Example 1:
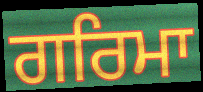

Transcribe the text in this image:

ਗਰਿਮਾ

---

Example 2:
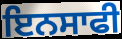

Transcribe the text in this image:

ਇਨਸਾਫੀ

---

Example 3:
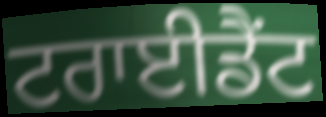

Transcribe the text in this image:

ਟਰਾਈਡੈਂਟ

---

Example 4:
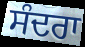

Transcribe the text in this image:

ਸੰਦਰਾ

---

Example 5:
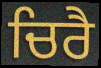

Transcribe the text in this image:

ਚਿਰੈ